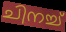
ചിനച്ച്